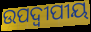
ଉପଦ୍ଵୀପୀୟ